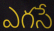
ఎగసే